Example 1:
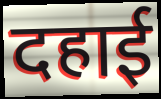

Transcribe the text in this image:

दहाई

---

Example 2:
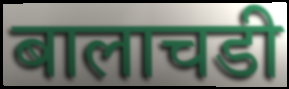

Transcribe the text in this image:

बालाचडी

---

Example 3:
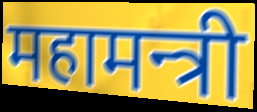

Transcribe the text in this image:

महामन्त्री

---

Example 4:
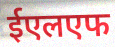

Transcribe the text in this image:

ईएलएफ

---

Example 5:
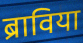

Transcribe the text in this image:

ब्राविया